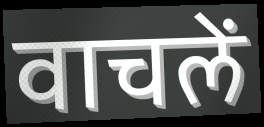
वाचलें